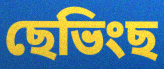
ছেভিংছ